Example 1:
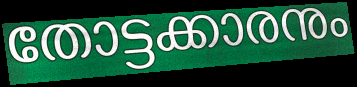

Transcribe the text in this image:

തോട്ടക്കാരനും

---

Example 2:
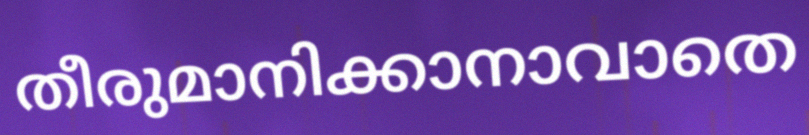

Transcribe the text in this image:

തീരുമാനിക്കാനാവാതെ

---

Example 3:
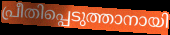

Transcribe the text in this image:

പ്രീതിപ്പെടുത്താനായി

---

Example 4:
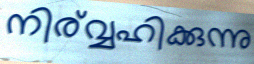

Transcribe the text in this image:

നിര്വ്വഹിക്കുന്നു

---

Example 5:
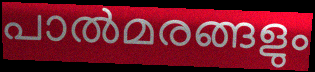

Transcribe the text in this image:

പാൽമരങ്ങളും